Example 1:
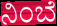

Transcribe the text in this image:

ನಿಂಬೆ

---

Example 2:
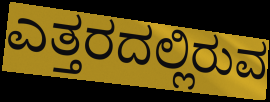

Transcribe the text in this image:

ಎತ್ತರದಲ್ಲಿರುವ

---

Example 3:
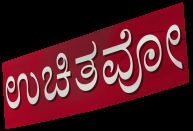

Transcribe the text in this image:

ಉಚಿತವೋ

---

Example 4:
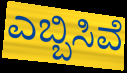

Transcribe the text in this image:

ಎಬ್ಬಿಸಿವೆ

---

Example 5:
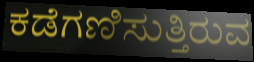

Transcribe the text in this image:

ಕಡೆಗಣಿಸುತ್ತಿರುವ